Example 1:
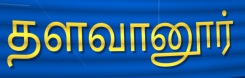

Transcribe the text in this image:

தளவானூர்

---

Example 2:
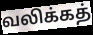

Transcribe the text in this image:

வலிக்கத்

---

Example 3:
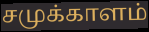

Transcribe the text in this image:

சமுக்காளம்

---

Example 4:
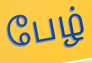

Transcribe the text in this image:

பேழ்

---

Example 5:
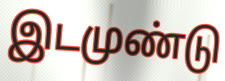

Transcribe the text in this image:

இடமுண்டு